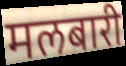
मलबारी